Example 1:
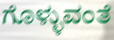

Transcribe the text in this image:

ಗೊಳ್ಳುವಂತೆ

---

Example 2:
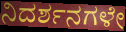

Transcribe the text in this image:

ನಿದರ್ಶನಗಳೇ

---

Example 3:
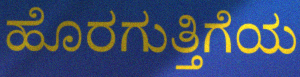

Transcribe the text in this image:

ಹೊರಗುತ್ತಿಗೆಯ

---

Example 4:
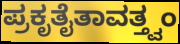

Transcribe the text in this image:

ಪ್ರಕೃತೈತಾವತ್ತ್ವಂ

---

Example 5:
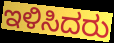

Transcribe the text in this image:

ಇಳಿಸಿದರು